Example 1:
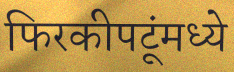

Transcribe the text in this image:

फिरकीपटूंमध्ये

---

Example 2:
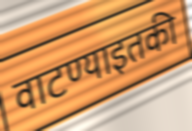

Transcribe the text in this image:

वाटण्याइतकी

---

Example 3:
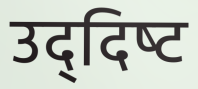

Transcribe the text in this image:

उद्‌दिष्‍ट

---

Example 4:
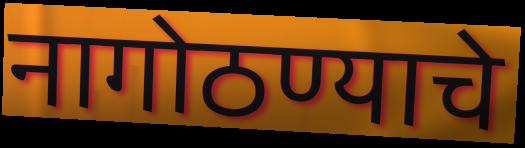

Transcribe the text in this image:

नागोठण्याचे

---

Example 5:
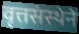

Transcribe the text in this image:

वृत्तसंस्थेने